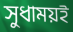
সুধাময়ই